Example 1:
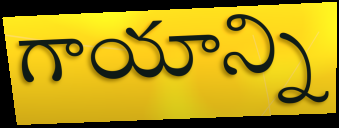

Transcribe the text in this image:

గాయాన్ని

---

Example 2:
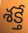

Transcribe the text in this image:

శక్తే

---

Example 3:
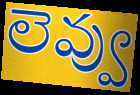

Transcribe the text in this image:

లెవ్వు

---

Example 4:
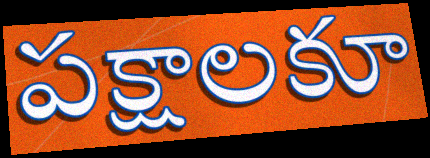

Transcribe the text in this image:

పక్షాలకూ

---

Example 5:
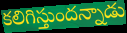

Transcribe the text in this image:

కలిగిస్తుందన్నాడు